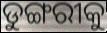
ଡୁଙ୍ଗରୀକୁ